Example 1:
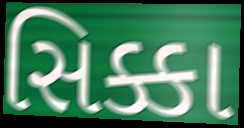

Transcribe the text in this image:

સિક્કા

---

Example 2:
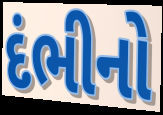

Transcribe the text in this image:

દંભીનો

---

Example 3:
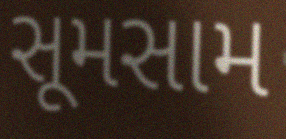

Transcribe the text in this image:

સૂમસામ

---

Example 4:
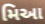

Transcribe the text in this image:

મિઆ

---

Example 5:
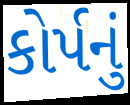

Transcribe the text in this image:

કોર્પનું